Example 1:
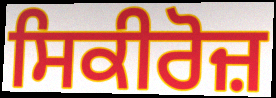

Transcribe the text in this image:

ਸਿਕੀਰੋਜ਼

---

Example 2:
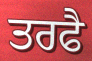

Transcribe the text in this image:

ਤਰਫੈ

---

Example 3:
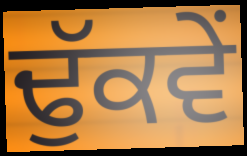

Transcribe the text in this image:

ਢੁੱਕਵੇਂ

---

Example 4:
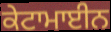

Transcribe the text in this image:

ਕੇਟਾਮਾਈਨ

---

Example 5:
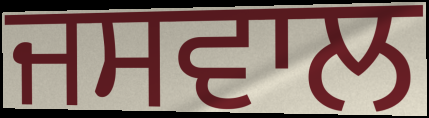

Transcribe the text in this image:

ਜਸਵਾਲ